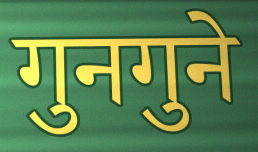
गुनगुने